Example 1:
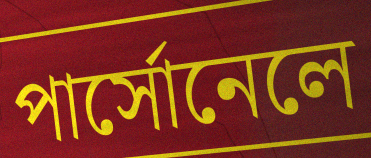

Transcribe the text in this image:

পার্সোনেলে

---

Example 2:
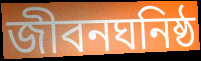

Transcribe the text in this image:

জীবনঘনিষ্ঠ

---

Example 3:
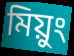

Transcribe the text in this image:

মিয়ুং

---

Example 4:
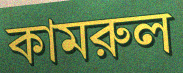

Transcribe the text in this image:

কামরুল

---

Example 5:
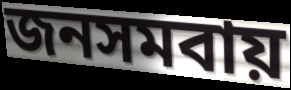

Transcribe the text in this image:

জনসমবায়